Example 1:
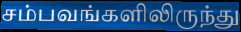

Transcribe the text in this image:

சம்பவங்களிலிருந்து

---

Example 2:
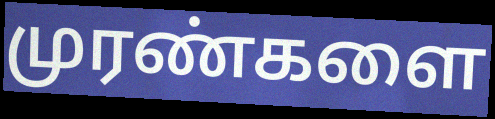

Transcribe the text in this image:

முரண்களை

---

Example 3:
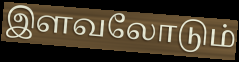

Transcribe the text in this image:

இளவலோடும்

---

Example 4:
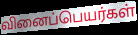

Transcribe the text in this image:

வினைப்பெயர்கள்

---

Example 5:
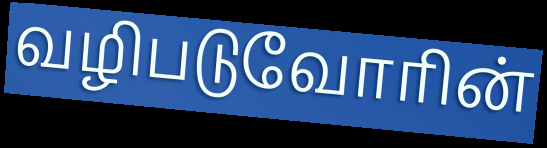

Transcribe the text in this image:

வழிபடுவோரின்